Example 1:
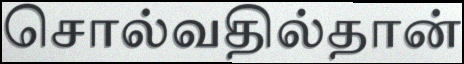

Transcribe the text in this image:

சொல்வதில்தான்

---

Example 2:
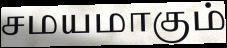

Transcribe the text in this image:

சமயமாகும்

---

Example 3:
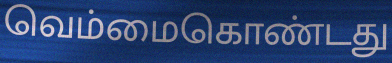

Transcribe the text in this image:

வெம்மைகொண்டது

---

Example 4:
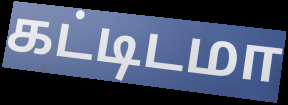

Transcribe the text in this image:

கட்டிடமா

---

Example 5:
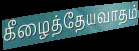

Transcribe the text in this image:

கீழைத்தேயவாதம்